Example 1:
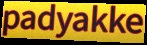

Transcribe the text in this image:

padyakke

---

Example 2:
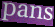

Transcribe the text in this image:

pans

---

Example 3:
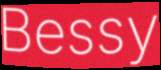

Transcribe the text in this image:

Bessy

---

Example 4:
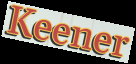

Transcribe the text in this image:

Keener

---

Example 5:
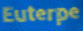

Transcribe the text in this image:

Euterpe